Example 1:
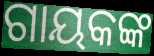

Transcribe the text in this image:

ଗାୟକଙ୍କ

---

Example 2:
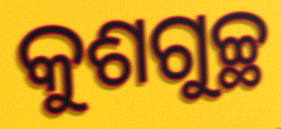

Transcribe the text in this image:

କୁଶଗୁଚ୍ଛ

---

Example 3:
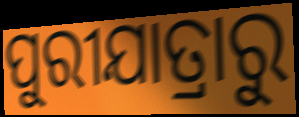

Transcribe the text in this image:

ପୁରୀଯାତ୍ରାରୁ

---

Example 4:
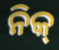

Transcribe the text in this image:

ନିକ୍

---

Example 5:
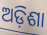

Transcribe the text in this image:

ଅଡ଼ିଶା